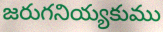
జరుగనియ్యకుము